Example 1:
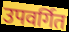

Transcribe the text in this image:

उपवर्गित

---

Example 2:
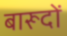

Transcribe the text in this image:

बारूदों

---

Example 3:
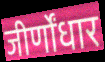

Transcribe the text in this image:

जीर्णोंधार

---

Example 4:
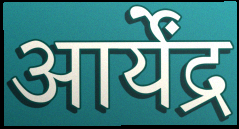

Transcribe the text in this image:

आर्येंद्र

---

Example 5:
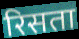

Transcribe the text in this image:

रिसता